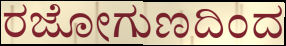
ರಜೋಗುಣದಿಂದ